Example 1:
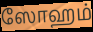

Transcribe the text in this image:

ஸோஹம்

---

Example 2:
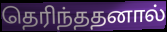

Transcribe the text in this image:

தெரிந்ததனால்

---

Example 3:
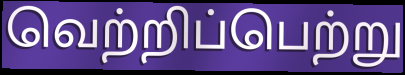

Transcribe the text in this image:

வெற்றிப்பெற்று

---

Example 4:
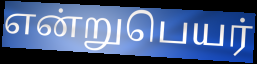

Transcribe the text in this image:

என்றுபெயர்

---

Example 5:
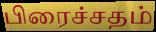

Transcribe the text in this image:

பிரைச்சதம்